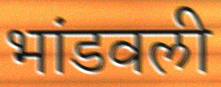
भांडवली